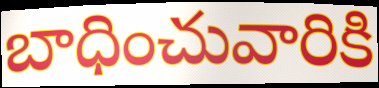
బాధించువారికి